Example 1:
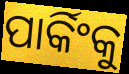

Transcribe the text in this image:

ପାର୍କିଂକୁ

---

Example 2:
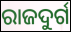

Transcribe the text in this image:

ରାଜଦୁର୍ଗ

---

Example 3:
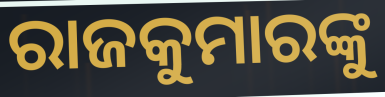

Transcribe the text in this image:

ରାଜକୁମାରଙ୍କୁ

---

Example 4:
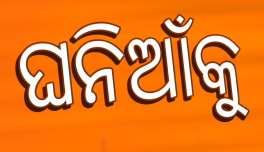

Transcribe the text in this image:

ଘନିଆଁକୁ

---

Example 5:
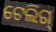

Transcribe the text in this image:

ଟେଲିଗ୍